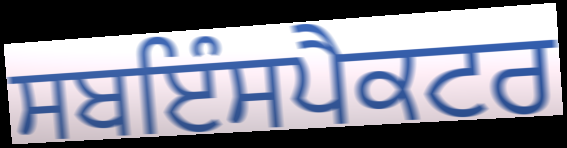
ਸਬਇੰਸਪੈਕਟਰ